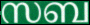
സബ